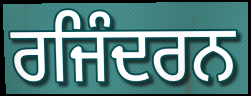
ਰਜਿੰਦਰਨ